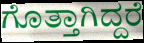
ಗೊತ್ತಾಗಿದ್ದರೆ